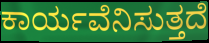
ಕಾರ್ಯವೆನಿಸುತ್ತದೆ